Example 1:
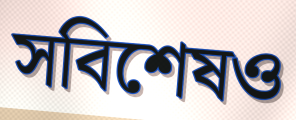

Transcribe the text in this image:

সবিশেষও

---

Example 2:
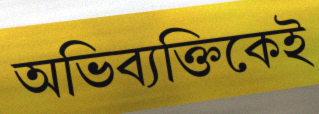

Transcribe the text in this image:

অভিব্যক্তিকেই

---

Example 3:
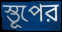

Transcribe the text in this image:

স্তূপের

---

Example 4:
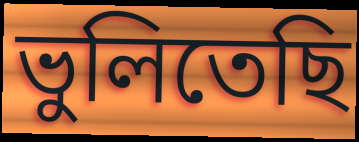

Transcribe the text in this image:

ভুলিতেছি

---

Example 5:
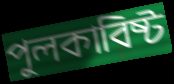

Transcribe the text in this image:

পুলকাবিষ্ট